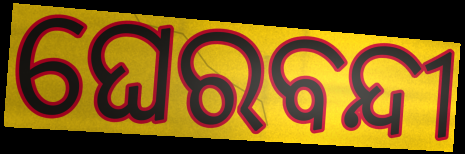
ଘେରବନ୍ଦୀ